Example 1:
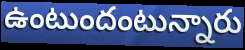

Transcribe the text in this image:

ఉంటుందంటున్నారు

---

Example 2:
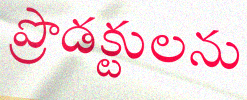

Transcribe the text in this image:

ప్రొడక్టులను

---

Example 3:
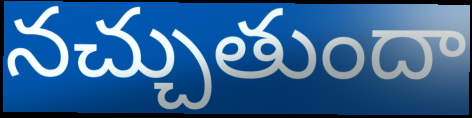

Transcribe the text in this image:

నచ్చుతుందా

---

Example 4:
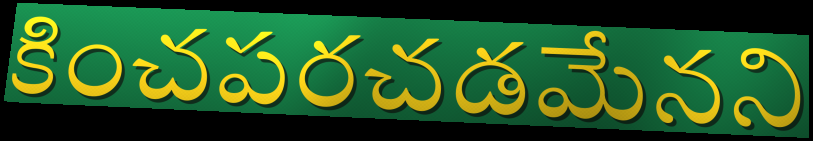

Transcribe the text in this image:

కించపరచడమేనని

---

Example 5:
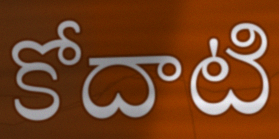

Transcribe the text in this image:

కోదాటి